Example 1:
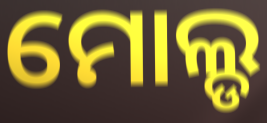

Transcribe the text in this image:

ମୋଲ୍ଡ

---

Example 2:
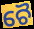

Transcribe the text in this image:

ଚୈ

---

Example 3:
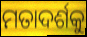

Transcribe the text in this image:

ମତାଦର୍ଶକୁ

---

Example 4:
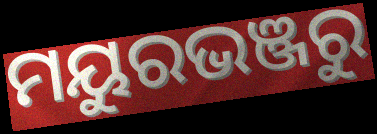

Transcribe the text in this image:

ମୟୁରଭଞ୍ଜରୁ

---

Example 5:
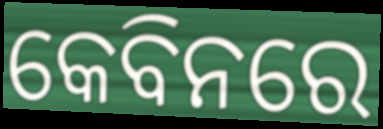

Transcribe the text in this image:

କେବିନରେ